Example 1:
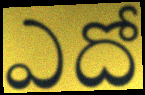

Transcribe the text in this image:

ఎదో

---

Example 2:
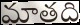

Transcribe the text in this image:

మాతది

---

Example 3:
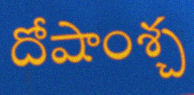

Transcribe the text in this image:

దోషాంశ్చ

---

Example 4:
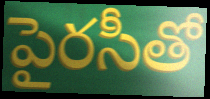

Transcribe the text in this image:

పైరసీతో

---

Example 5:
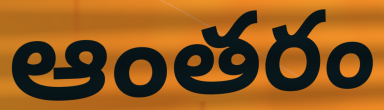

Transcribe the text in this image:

ఆంతరం